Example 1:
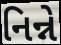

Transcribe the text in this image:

નિન્ને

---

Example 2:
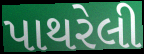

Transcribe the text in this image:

પાથરેલી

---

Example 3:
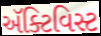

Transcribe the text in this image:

ઍક્ટિવિસ્ટ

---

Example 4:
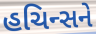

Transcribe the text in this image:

હચિન્સને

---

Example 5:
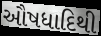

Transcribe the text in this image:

ઔષધાદિથી